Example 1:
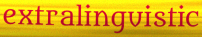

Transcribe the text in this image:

extralinguistic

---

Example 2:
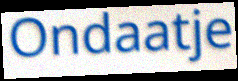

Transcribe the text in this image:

Ondaatje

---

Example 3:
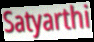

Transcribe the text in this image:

Satyarthi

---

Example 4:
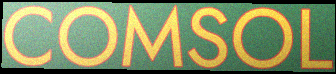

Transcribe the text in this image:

COMSOL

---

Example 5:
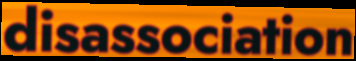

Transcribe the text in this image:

disassociation